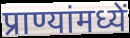
प्राण्यांमध्यें